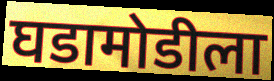
घडामोडीला